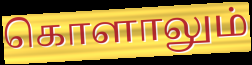
கொளாலும்